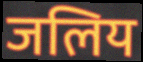
जलिय